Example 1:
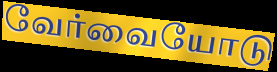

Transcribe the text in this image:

வேர்வையோடு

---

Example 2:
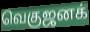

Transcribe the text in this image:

வெகுஜனக்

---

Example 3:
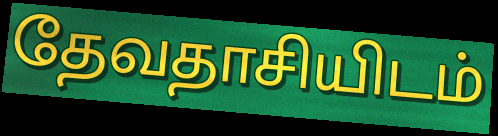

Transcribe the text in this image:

தேவதாசியிடம்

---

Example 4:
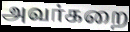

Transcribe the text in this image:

அவர்கறை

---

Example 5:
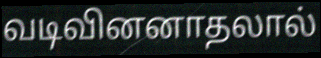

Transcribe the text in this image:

வடிவினனாதலால்